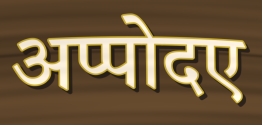
अप्पोदए